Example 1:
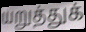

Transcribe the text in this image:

யறுத்துக்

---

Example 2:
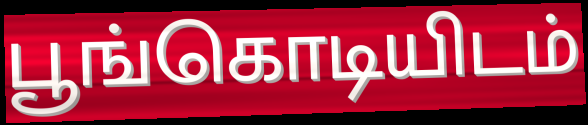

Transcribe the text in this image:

பூங்கொடியிடம்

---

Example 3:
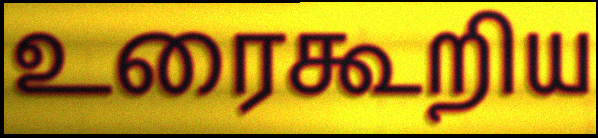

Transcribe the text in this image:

உரைகூறிய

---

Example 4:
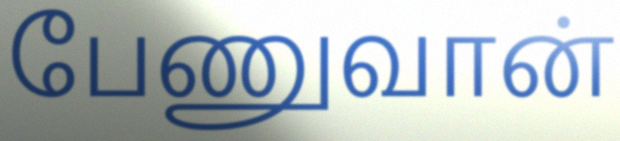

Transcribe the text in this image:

பேணுவான்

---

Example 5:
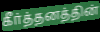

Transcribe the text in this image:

கீர்த்தனத்தின்